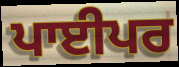
ਪਾਈਪਰ